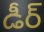
డీర్